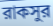
রাকসুর